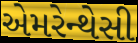
એમરેન્થેસી